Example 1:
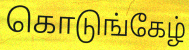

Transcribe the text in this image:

கொடுங்கேழ்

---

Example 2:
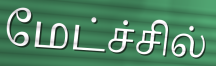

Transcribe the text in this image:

மேட்ச்சில்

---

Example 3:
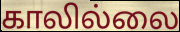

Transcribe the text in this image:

காலில்லை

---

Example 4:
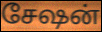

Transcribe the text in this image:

சேஷன்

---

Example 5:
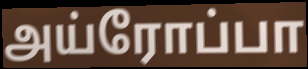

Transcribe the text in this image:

அய்ரோப்பா